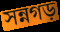
সন্নগড়